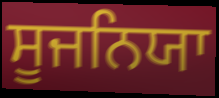
ਸੂਜਨਿਯਾ